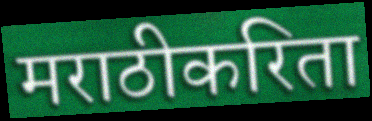
मराठीकरिता